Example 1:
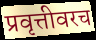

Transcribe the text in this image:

प्रवृत्तीवरच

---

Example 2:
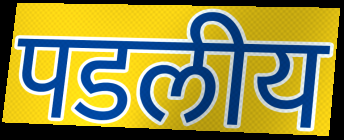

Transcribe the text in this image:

पडलीय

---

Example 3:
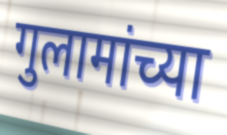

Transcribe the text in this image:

गुलामांच्या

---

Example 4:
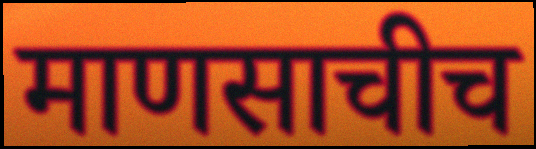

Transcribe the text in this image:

माणसाचीच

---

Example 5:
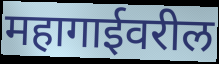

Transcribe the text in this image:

महागाईवरील